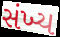
સંખ્ય